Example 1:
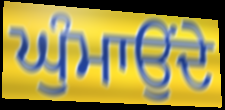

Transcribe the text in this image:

ਘੁੰਮਾਉਂਦੇ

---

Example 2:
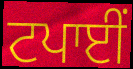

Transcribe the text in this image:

ਟਪਾਈਂ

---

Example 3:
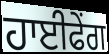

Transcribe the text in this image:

ਹਾਈਫੇਂਗ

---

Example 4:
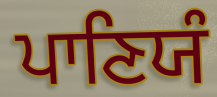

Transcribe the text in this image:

ਪਾਣਿਯੰ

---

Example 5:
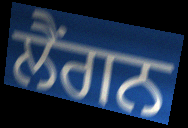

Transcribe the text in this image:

ਲੈਂਗਨ